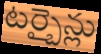
టర్బైన్లు